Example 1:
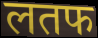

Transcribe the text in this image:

लतफ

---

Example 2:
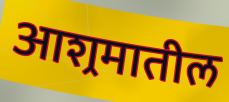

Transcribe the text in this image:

आश्रमातील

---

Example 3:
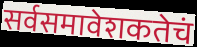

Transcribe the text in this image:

सर्वसमावेशकतेचं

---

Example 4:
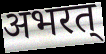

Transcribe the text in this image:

अभरत्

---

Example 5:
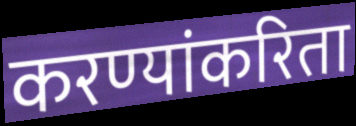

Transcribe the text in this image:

करण्यांकरिता